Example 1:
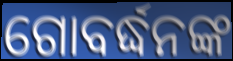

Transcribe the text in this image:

ଗୋବର୍ଦ୍ଧନଙ୍କ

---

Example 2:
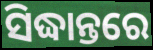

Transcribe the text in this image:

ସିଦ୍ଧାନ୍ତରେ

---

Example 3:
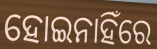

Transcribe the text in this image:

ହୋଇନାହିଁରେ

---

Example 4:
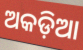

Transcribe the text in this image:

ଅକଡ଼ିଆ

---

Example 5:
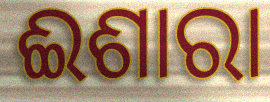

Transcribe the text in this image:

ଈଶାରା